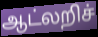
ஆட்லறிச்